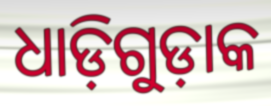
ଧାଡ଼ିଗୁଡ଼ାକ